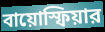
বায়োস্ফিয়ার